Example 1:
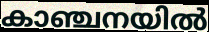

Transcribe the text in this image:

കാഞ്ചനയിൽ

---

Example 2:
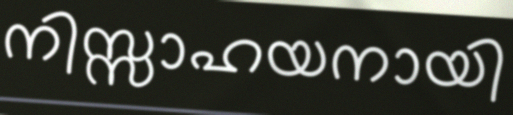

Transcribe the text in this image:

നിസ്സാഹയനായി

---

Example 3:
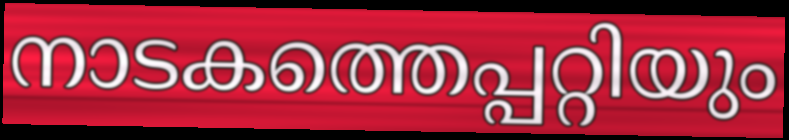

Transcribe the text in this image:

നാടകത്തെപ്പറ്റിയും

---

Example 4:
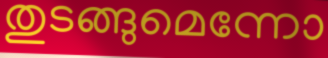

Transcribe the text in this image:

തുടങ്ങുമെന്നോ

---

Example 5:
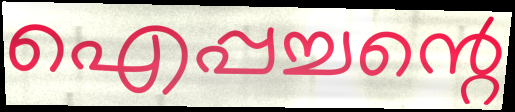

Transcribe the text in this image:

ഐപ്പച്ചന്റെ